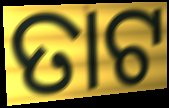
ତାଟ